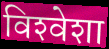
विश्वेशा